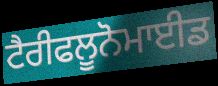
ਟੈਰੀਫਲੂਨੋਮਾਈਡ